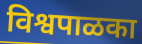
विश्वपाळका